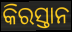
କିରସ୍ତାନ